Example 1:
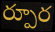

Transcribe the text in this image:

ర్పూర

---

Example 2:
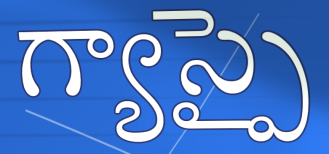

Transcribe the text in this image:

గ్యాస్పై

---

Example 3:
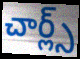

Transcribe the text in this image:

చార్ల్స్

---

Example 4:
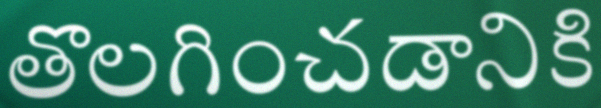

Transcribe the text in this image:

తొలగించడానికి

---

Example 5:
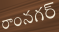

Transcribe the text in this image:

రాంనగర్